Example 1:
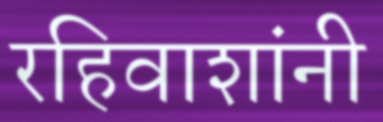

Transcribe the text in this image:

रहिवाशांनी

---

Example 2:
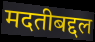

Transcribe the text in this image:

मदतीबद्दल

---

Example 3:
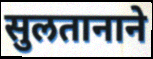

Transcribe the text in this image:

सुलतानाने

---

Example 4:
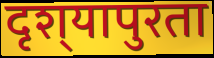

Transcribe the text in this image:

दृश्यापुरता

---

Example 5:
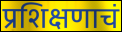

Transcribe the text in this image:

प्रशिक्षणाचं